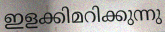
ഇളക്കിമറിക്കുന്നു